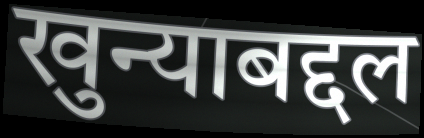
खुन्याबद्दल